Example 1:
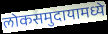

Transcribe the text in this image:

लोकसमुदायामध्ये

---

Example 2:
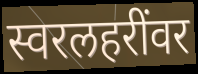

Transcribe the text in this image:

स्वरलहरींवर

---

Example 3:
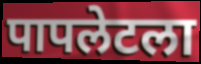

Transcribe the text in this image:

पापलेटला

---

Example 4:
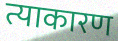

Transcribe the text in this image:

त्याकारण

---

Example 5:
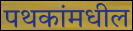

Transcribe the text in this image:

पथकांमधील